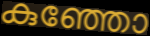
കുഞ്ഞോ